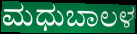
ಮಧುಬಾಲಳ